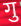
गु